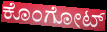
ಕೊಂಗೋಟ್